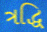
ત્રદ્ધિ